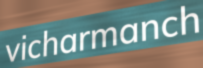
vicharmanch